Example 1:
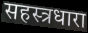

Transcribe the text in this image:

सहस्त्रधारा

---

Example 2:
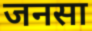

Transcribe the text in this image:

जनसा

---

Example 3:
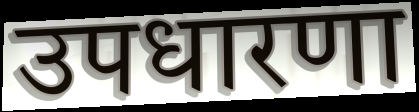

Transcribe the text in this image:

उपधारणा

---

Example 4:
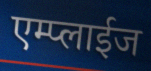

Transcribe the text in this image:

एम्प्लाईज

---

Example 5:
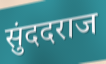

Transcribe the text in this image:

सुंददराज